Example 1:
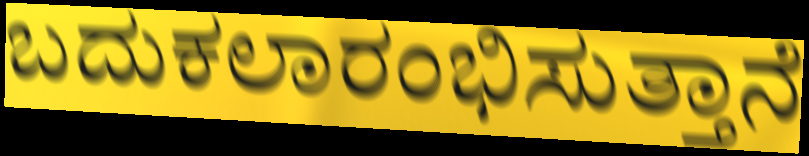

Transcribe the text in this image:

ಬದುಕಲಾರಂಭಿಸುತ್ತಾನೆ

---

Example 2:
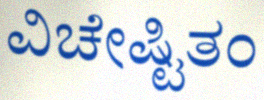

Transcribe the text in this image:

ವಿಚೇಷ್ಟಿತಂ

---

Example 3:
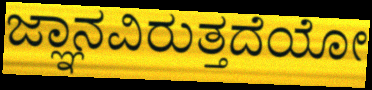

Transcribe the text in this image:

ಜ್ಞಾನವಿರುತ್ತದೆಯೋ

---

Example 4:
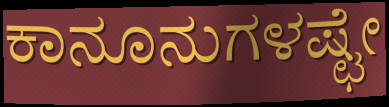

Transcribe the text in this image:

ಕಾನೂನುಗಳಷ್ಟೇ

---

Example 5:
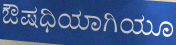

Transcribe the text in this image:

ಔಷಧಿಯಾಗಿಯೂ